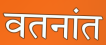
वतनांत